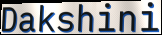
Dakshini